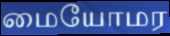
மையோமர